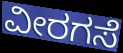
ವೀರಗಸೆ